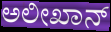
ಅಲೀಖಾನ್